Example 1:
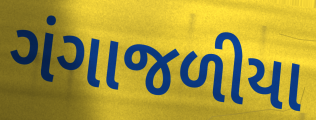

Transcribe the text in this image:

ગંગાજળીયા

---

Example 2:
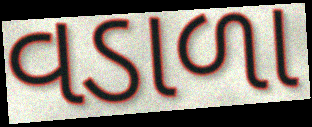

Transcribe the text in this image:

વડાળા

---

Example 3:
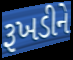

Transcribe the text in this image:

રૂખડીને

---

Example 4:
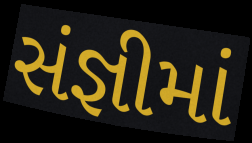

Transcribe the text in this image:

સંજ્ઞીમાં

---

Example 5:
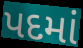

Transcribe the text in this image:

પદમાં